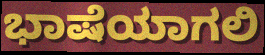
ಭಾಷೆಯಾಗಲಿ